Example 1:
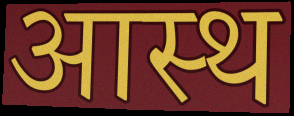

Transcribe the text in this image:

आस्थ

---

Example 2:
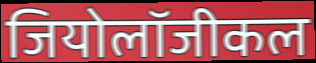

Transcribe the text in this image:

जियोलॉजीकल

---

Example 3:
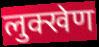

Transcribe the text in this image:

लुक्खेण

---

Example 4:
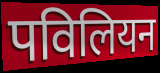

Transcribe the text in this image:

पविलियन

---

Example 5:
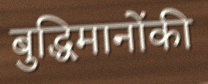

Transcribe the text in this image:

बुद्धिमानोंकी